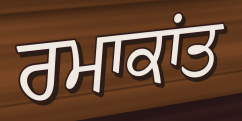
ਰਮਾਕਾਂਤ